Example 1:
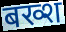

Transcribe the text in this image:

बख्श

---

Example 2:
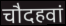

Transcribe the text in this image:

चौदहवां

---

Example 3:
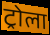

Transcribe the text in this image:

ट्रोला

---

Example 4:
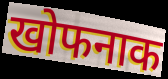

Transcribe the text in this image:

खोफनाक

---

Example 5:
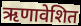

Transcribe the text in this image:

ऋणावेशित